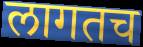
लागतच